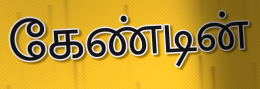
கேண்டின்